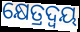
କ୍ଷେତ୍ରଦ୍ଵୟ